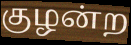
குழன்ற